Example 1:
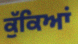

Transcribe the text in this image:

ਕੁੱਕਿਆਂ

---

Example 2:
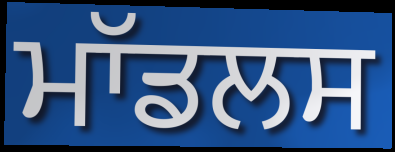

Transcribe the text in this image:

ਮਾੱਡਲਸ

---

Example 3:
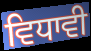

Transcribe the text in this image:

ਵਿਧਾਵੀ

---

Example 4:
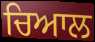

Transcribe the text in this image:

ਚਿਆਲ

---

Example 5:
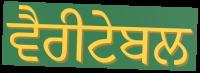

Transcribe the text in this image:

ਵੈਰੀਟੇਬਲ